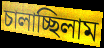
চালাচ্ছিলাম